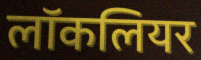
लॉकलियर